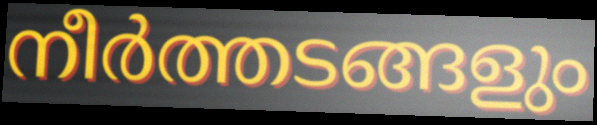
നീർത്തടങ്ങളും